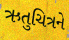
ઋતુચિત્રને